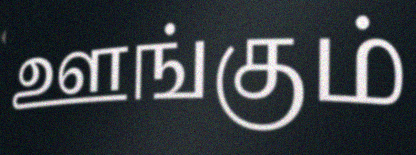
ஊங்கும்